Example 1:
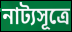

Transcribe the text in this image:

নাট্যসূত্রে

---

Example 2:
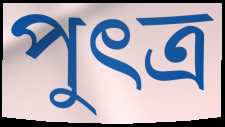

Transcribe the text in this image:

পুৎত্র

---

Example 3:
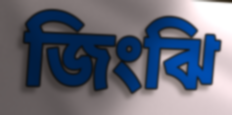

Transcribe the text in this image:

জিংঝি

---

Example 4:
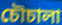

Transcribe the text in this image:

চৌচালা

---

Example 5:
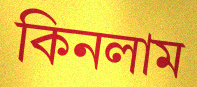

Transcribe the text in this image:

কিনলাম